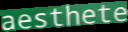
aesthete